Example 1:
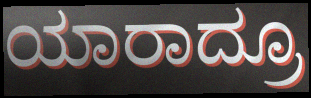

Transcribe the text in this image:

ಯಾರಾದ್ರೂ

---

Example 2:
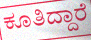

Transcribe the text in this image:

ಕೂತಿದ್ದಾರೆ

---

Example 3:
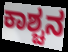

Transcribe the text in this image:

ಕಾಶ್ಚನ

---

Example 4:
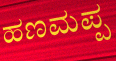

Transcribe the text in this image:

ಹಣಮಪ್ಪ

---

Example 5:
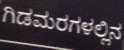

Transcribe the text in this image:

ಗಿಡಮರಗಳಲ್ಲಿನ